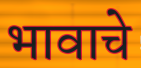
भावाचे